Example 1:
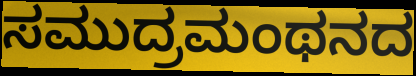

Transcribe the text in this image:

ಸಮುದ್ರಮಂಥನದ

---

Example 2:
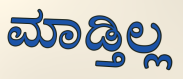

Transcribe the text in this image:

ಮಾಡ್ತಿಲ್ಲ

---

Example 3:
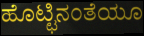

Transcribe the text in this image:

ಹೊಟ್ಟಿನಂತೆಯೂ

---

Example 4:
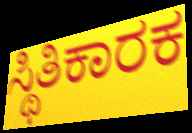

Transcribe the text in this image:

ಸ್ಥಿತಿಕಾರಕ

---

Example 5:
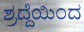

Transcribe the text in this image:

ಶ್ರದ್ದೆಯಿಂದ